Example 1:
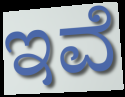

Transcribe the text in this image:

ಇವೆ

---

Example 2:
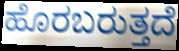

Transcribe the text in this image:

ಹೊರಬರುತ್ತದೆ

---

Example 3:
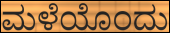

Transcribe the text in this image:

ಮಳೆಯೊಂದು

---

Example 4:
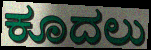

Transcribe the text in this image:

ಕೂದಲು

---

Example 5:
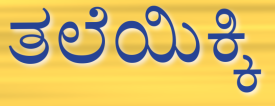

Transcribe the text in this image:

ತಲೆಯಿಕ್ಕಿ